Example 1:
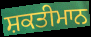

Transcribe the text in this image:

ਸ਼ਕਤੀਮਾਨ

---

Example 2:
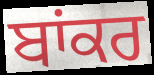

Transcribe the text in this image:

ਬਾਂਕਰ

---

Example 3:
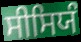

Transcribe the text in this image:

ਸੀਸਿਯੰ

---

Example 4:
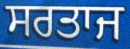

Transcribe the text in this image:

ਸਰਤਾਜ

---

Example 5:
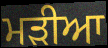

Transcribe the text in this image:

ਮੜੀਆ